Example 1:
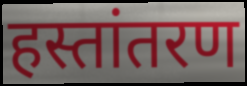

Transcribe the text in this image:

हस्तांतरण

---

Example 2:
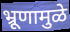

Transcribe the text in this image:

भ्रूणामुळे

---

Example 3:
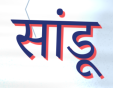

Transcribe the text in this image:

सांडू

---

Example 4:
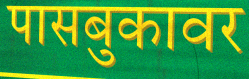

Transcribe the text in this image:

पासबुकावर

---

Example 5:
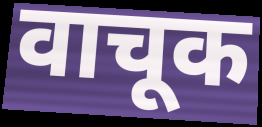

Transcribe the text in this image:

वाचूक